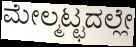
ಮೇಲ್ಮಟ್ಟದಲ್ಲೇ